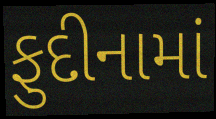
ફુદીનામાં